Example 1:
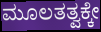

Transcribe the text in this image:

ಮೂಲತತ್ವಕ್ಕೇ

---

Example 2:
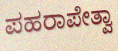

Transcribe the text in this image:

ಪಹರಾಪೇತ್ವಾ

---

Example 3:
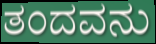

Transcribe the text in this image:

ತಂದವನು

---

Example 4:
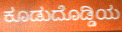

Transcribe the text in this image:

ಕೂಡುದೊಡ್ಡಿಯ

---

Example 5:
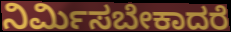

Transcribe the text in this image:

ನಿರ್ಮಿಸಬೇಕಾದರೆ